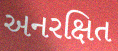
અનરક્ષિત